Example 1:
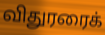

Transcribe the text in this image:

விதுரரைக்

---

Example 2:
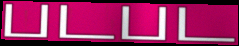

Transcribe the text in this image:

படபட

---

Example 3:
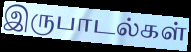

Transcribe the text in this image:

இருபாடல்கள்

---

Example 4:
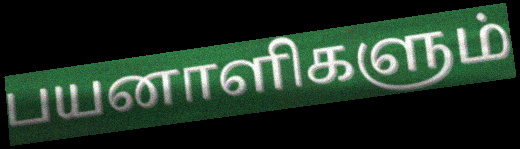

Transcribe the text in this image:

பயனாளிகளும்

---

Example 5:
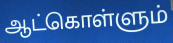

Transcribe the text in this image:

ஆட்கொள்ளும்